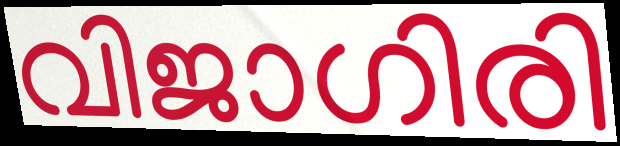
വിജാഗിരി